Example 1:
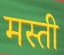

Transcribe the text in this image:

मस्ती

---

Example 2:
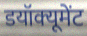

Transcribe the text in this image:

डयॉक्‍यूमेंट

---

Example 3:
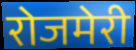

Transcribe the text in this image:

रोजमेरी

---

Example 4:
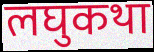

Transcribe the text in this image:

लघुकथा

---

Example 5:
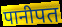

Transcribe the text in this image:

पानीपत